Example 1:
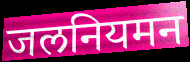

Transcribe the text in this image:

जलनियमन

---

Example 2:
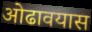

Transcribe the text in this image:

ओढावयास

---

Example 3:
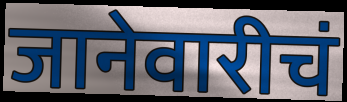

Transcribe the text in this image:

जानेवारीचं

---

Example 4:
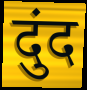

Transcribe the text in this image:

दुंद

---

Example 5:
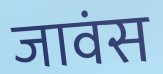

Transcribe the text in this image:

जावंस